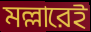
মল্লারেই